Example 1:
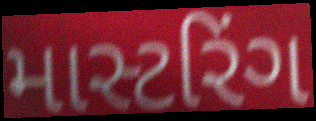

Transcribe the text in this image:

માસ્ટરિંગ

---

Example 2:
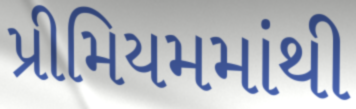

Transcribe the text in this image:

પ્રીમિયમમાંથી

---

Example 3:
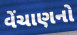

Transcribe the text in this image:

વેંચાણનો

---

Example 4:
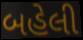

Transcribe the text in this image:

બહેલી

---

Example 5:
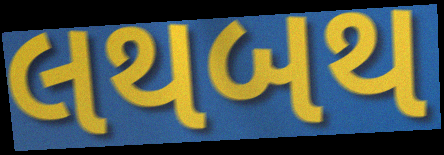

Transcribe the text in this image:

લથબથ